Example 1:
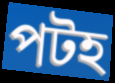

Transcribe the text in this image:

পটহ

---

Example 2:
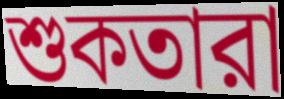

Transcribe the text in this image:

শুকতারা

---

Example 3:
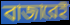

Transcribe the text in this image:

বাজারেই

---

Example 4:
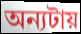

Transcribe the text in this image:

অন্যটায়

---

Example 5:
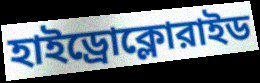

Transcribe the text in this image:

হাইড্রোক্লোরাইড